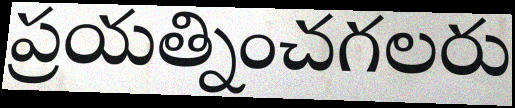
ప్రయత్నించగలరు